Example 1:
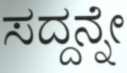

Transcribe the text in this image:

ಸದ್ದನ್ನೇ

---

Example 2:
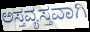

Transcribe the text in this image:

ಅಸ್ತವ್ಯಸ್ತವಾಗಿ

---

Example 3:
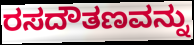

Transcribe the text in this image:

ರಸದೌತಣವನ್ನು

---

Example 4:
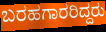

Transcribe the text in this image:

ಬರಹಗಾರರಿದ್ದರು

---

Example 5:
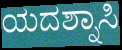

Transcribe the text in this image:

ಯದಶ್ನಾಸಿ